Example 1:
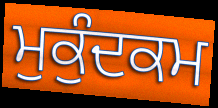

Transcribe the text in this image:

ਮੁਕੁੰਦਕਮ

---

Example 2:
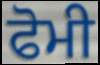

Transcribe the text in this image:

ਫੋਮੀ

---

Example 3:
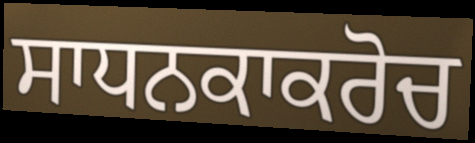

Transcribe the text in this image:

ਸਾਧਨਕਾਕਰੋਚ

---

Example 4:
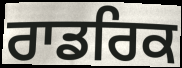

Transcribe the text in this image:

ਰਾਡਰਿਕ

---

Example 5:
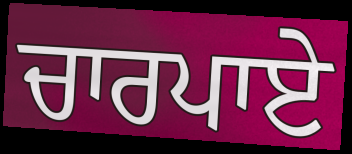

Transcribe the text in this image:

ਚਾਰਪਾਏ